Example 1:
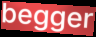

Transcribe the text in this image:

begger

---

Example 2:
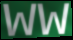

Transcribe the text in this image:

ww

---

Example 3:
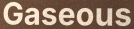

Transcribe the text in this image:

Gaseous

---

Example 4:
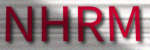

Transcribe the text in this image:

NHRM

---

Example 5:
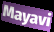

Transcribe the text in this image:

Mayavi